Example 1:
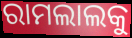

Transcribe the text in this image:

ରାମଲାଲକୁ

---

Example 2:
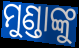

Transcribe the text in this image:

ମୁଣ୍ଡାଙ୍କୁ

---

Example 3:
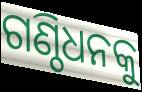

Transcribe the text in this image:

ଗଣ୍ଠିଧନକୁ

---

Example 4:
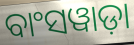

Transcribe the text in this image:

ବାଂସୱାଡ଼ା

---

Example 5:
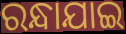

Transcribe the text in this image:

ରନ୍ଧାଯାଇ